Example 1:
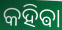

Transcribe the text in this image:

କହିଵା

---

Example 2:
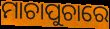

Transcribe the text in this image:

ମାଚାପୁଚାରେ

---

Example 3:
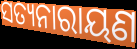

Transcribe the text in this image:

ସତ୍ଯନାରାୟଣ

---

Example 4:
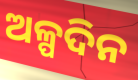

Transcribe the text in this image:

ଅଳ୍ପଦିନ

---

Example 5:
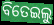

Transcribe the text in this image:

ବିତେଇଲୁ